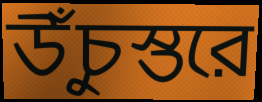
উঁচুস্তরে